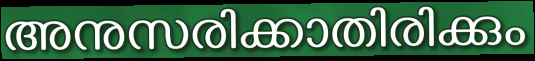
അനുസരിക്കാതിരിക്കും